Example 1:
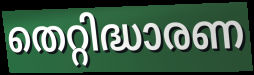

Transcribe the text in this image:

തെറ്റിദ്ധാരണ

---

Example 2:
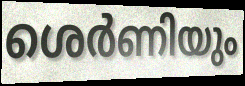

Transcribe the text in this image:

ശെർണിയും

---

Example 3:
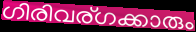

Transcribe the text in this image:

ഗിരിവര്ഗക്കാരും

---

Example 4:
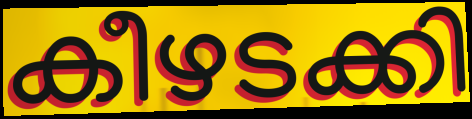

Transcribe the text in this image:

കീഴടക്കി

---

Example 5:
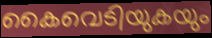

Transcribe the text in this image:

കൈവെടിയുകയും